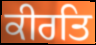
ਕੀਰਤਿ